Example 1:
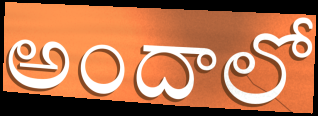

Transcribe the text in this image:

అందాలో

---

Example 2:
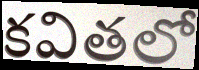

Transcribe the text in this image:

కవితలో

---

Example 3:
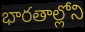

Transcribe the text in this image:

భారతాల్లోని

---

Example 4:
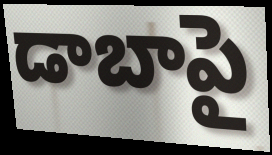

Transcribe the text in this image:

డాబాపై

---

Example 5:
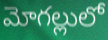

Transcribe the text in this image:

మోగల్లులో